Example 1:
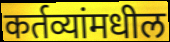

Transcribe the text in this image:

कर्तव्यांमधील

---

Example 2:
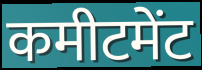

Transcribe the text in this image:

कमीटमेंट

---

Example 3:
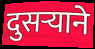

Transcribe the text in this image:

दुसऱ्याने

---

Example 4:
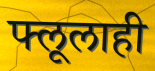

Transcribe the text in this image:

फ्लूलाही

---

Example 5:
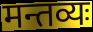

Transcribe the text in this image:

मन्तव्यः